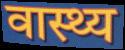
वास्थ्य